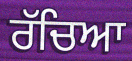
ਰੱਚਿਆ